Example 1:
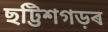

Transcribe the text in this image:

ছট্টিশগড়ৰ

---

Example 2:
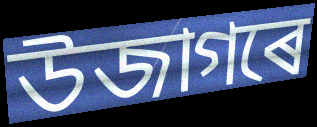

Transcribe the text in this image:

উজাগৰে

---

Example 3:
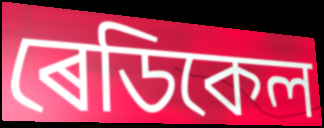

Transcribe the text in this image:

ৰেডিকেল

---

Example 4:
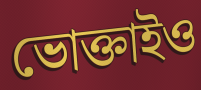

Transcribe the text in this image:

ভোক্তাইও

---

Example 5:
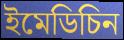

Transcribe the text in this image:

ইমেডিচিন